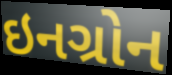
ઇનગ્રોન